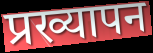
प्रख्यापन